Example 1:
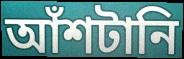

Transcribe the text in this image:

আঁশটানি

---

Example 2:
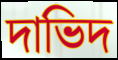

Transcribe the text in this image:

দাভিদ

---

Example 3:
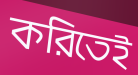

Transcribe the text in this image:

করিতেই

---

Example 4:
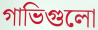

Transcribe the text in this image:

গাভিগুলো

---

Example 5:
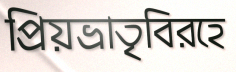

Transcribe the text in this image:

প্রিয়ভ্রাতৃবিরহে